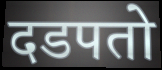
दडपतो